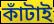
কাঁটাই